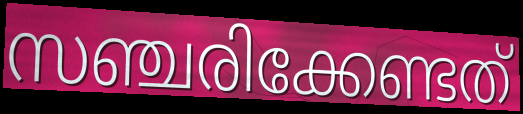
സഞ്ചരിക്കേണ്ടത്